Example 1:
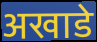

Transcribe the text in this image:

अखाडे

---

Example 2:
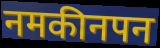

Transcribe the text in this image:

नमकीनपन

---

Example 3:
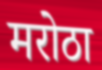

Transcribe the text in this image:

मरोठा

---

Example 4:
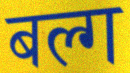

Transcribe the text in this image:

बल्ग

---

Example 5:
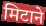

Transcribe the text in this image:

मिटाने